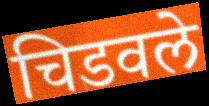
चिडवले